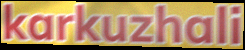
karkuzhali